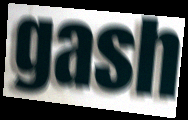
gash